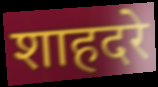
शाहदरे